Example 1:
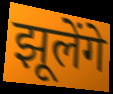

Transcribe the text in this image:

झूलेंगे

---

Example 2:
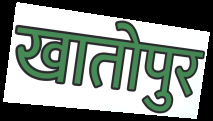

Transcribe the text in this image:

खातोपुर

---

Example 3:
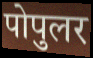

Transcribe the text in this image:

पोपुलर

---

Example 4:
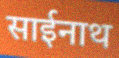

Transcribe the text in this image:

साईनाथ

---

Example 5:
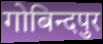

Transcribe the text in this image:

गोबिन्दपुर